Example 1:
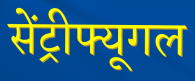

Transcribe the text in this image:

सेंट्रीफ्यूगल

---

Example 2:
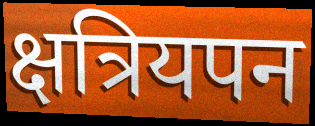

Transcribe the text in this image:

क्षत्रियपन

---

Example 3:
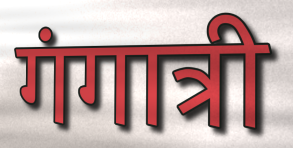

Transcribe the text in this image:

गंगात्री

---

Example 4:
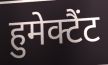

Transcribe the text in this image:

हुमेक्टैंट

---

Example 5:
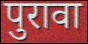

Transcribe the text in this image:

पुरावा